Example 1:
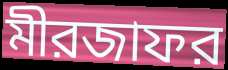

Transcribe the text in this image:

মীরজাফর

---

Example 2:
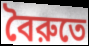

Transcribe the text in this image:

বৈরুতে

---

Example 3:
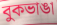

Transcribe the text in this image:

বুকভাঙা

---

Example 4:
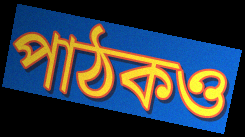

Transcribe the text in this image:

পাঠকও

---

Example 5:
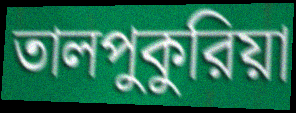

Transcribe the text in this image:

তালপুকুরিয়া